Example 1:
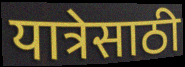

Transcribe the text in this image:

यात्रेसाठी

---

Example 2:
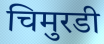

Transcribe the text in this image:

चिमुरडी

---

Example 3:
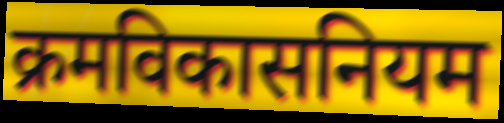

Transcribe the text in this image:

क्रमविकासनियम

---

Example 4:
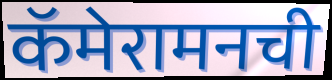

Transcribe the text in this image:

कॅमेरामनची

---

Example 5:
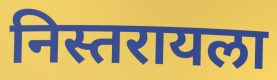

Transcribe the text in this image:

निस्तरायला